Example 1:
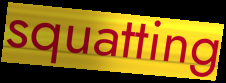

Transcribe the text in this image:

squatting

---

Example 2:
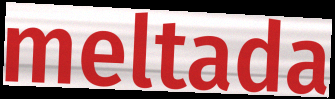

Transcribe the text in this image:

meltada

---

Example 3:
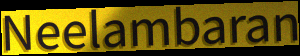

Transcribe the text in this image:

Neelambaran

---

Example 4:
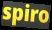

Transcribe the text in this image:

spiro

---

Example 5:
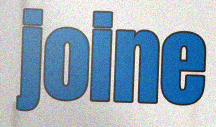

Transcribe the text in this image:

joine